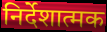
निर्देशात्मक